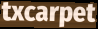
txcarpet